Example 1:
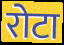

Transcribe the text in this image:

रोटा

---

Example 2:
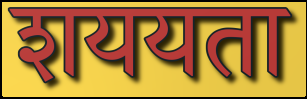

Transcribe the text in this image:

शययता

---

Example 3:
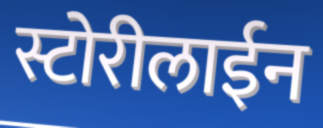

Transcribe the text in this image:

स्टोरीलाईन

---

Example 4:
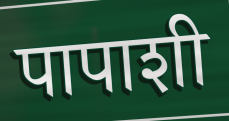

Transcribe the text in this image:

पापाशी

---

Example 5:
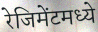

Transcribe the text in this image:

रेजिमेंटमध्ये